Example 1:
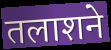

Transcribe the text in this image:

तलाशने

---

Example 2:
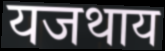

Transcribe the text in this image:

यजथाय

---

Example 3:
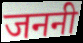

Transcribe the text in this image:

जननी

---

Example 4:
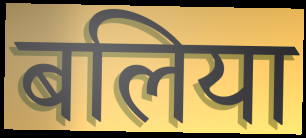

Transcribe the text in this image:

बलिया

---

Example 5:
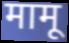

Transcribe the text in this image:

मामू